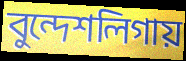
বুন্দেশলিগায়